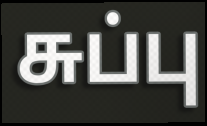
சுப்பு